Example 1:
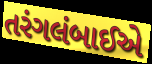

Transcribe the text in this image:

તરંગલંબાઈએ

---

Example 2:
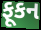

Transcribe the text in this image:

ફૂકન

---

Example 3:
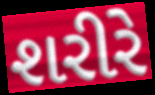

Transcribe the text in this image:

શરીરે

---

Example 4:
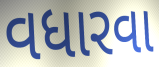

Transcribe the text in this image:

વધારવા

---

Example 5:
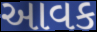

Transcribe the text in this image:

આવક